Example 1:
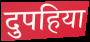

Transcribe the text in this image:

दुपहिया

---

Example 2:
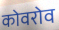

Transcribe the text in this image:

कोवरोव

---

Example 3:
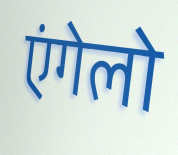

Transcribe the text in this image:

एंगेलो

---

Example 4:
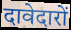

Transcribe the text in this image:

दावेदारों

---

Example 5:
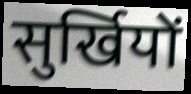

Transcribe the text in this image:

सुर्खियों